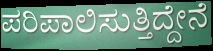
ಪರಿಪಾಲಿಸುತ್ತಿದ್ದೇನೆ